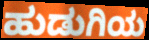
ಹುಡುಗಿಯ